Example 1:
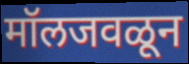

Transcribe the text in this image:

मॉलजवळून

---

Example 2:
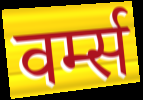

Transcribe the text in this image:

वर्म्स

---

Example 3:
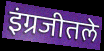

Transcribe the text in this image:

इंग्रजीतले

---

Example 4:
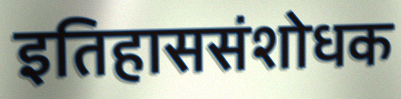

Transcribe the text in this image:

इतिहाससंशोधक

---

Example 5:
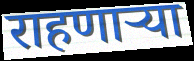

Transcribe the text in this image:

राहणार्‍या